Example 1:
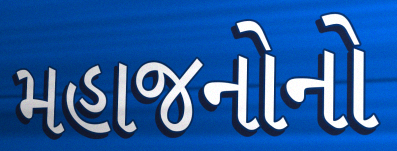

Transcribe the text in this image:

મહાજનોનો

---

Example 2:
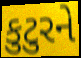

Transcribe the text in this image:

કુટુરને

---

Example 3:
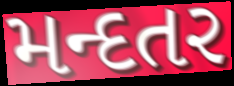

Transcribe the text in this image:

મન્દતર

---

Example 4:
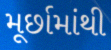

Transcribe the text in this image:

મૂર્છામાંથી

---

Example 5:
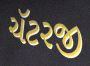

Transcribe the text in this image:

ચૅટરજી